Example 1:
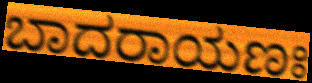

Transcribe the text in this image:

ಬಾದರಾಯಣಃ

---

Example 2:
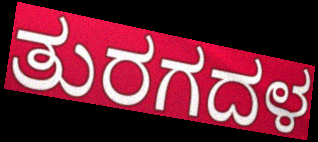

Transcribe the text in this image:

ತುರಗದಳ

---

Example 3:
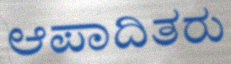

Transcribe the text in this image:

ಆಪಾದಿತರು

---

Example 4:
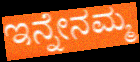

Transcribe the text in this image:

ಇನ್ನೇನಮ್ಮ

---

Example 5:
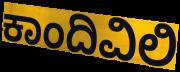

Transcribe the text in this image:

ಕಾಂದಿವಿಲಿ